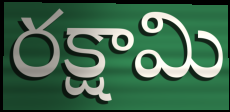
రక్షామి